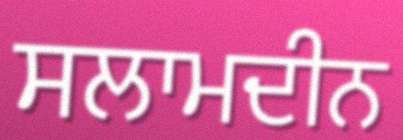
ਸਲਾਮਦੀਨ